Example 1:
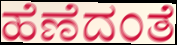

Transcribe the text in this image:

ಹೆಣೆದಂತೆ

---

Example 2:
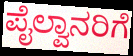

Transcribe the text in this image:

ಪೈಲ್ವಾನರಿಗೆ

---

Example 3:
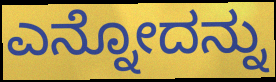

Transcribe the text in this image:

ಎನ್ನೋದನ್ನು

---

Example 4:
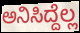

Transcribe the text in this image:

ಅನಿಸಿದ್ದೆಲ್ಲ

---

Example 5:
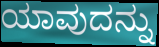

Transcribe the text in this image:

ಯಾವುದನ್ನು